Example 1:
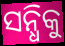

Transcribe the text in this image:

ସନ୍ଧିକୁ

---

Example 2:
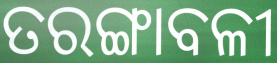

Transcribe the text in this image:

ତରଙ୍ଗାବଳୀ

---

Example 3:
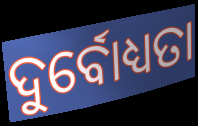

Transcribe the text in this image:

ଦୁର୍ବୋଧ୍ୟତା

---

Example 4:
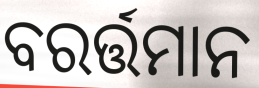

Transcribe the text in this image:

ବରର୍ତ୍ତମାନ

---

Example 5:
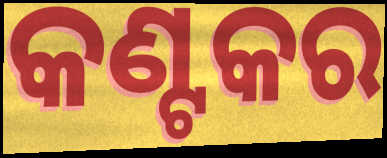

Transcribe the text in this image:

କଣ୍ଟକର